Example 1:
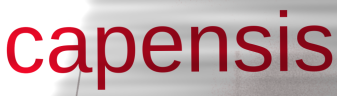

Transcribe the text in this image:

capensis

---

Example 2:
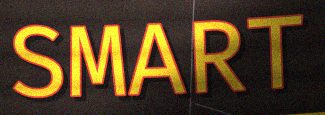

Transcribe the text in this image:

SMART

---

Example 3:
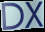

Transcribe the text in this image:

DX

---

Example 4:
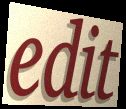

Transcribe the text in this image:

edit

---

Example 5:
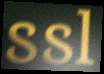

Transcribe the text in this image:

ssl